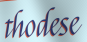
thodese